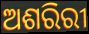
ଅଶରିରୀ